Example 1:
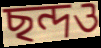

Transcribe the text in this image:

ছন্দও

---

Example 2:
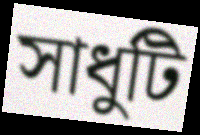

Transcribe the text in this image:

সাধুটি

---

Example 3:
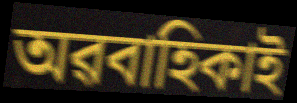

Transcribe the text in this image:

অৱবাহিকাই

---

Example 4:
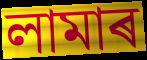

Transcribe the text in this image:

লামাৰ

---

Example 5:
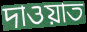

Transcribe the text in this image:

দাওয়াত